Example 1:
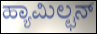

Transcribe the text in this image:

ಹ್ಯಾಮಿಲ್ಟನ್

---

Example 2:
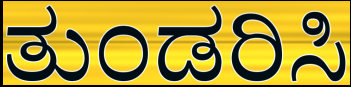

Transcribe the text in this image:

ತುಂಡರಿಸಿ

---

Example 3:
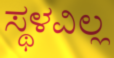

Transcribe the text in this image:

ಸ್ಥಳವಿಲ್ಲ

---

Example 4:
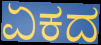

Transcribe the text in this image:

ಏಕದ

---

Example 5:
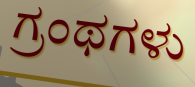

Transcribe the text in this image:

ಗ್ರಂಥಗಳು